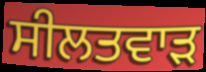
ਸੀਲਤਵਾੜ